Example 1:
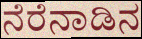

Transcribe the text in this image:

ನೆರೆನಾಡಿನ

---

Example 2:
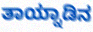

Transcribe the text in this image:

ತಾಯ್ನಾಡಿನ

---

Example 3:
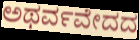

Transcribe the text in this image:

ಅಥರ್ವವೇದದ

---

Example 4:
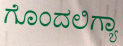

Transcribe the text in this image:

ಗೊಂದಲಿಗ್ಯಾ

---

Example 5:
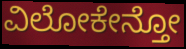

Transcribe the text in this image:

ವಿಲೋಕೇನ್ತೋ